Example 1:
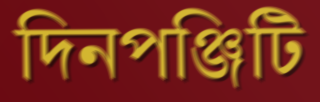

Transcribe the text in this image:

দিনপঞ্জিটি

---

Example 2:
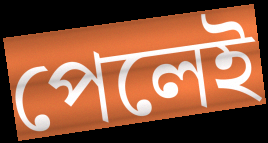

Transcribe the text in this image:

পেলেই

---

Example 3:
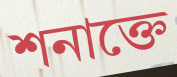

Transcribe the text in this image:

শনাক্তে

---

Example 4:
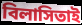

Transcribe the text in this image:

বিলাসিতাই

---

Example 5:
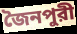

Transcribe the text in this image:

জৈনপুরী